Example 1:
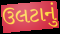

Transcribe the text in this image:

ઉલટાનું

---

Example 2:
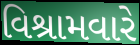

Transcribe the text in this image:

વિશ્રામવારે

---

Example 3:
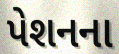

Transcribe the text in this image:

પેશનના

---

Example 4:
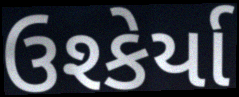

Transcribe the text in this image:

ઉશ્કેર્યા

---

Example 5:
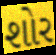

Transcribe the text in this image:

શોર